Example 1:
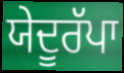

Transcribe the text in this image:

ਯੇਦੂਰੱਪਾ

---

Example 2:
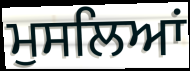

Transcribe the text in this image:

ਮੁਸਲਿਆਂ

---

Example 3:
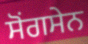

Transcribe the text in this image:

ਸੋਂਗਸੇਨ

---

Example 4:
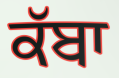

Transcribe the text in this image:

ਕੱਬਾ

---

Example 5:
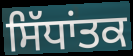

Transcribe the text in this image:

ਸਿੱਧਾਂਤਕ